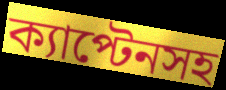
ক্যাপ্টেনসহ